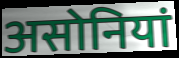
असोनियां